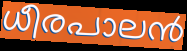
ധീരപാലൻ